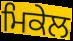
ਮਿਕੇਲ